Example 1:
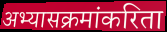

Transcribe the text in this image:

अभ्यासक्रमांकरिता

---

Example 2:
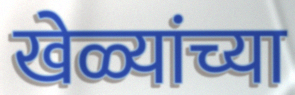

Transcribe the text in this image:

खेळ्यांच्या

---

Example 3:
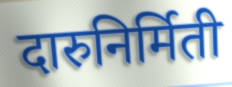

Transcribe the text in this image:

दारुनिर्मिती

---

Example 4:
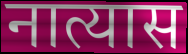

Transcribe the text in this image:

नात्यास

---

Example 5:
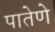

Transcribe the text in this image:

पातेणे